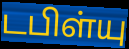
டபிள்யு